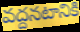
వద్దనటానికి